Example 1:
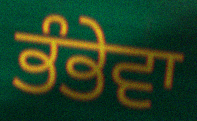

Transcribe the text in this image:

ਭੰਭੇਵਾ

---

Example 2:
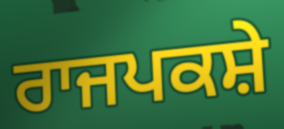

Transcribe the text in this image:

ਰਾਜਪਕਸ਼ੇ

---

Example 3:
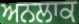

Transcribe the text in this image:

ਅਨਲਾਕ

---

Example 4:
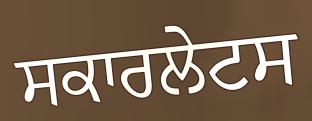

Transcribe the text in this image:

ਸਕਾਰਲੇਟਸ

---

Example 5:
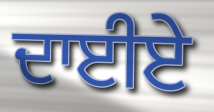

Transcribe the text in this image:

ਦਾਈਏ